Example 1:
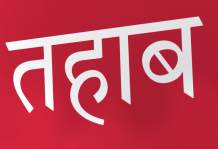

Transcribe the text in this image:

तहाब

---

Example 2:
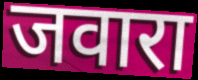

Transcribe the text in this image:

जवारा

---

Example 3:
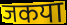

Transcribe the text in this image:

जकया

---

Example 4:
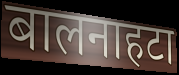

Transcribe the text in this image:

बालनाहटा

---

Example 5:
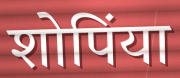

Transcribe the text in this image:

शोपिंया